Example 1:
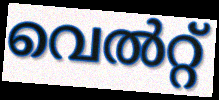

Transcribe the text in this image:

വെൽറ്റ്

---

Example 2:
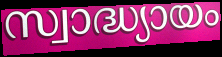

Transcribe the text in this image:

സ്വാദ്ധ്യായം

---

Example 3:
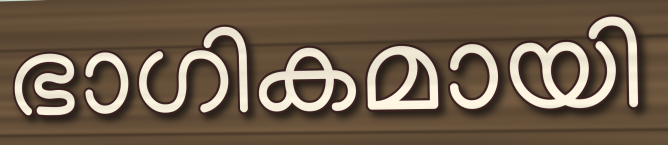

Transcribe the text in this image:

ഭാഗികമായി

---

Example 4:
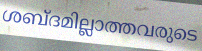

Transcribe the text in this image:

ശബ്ദമില്ലാത്തവരുടെ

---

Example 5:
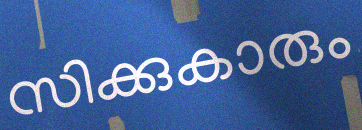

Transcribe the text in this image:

സിക്കുകാരും